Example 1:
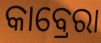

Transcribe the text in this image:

କାବ୍ରେରା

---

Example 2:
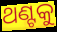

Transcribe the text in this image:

ଥଣ୍ଟକୁ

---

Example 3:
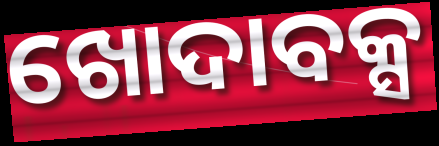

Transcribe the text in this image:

ଖୋଦାବକ୍ସ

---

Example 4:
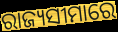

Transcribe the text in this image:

ରାଜ୍ୟସୀମାରେ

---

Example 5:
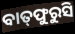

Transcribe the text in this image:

ବାତ୍‌ଫୁରୁସି